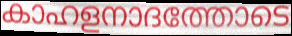
കാഹളനാദത്തോടെ